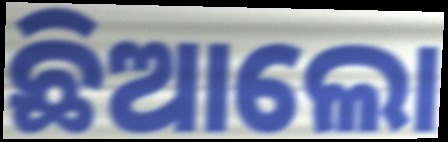
ଛିଆଲୋ